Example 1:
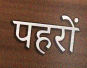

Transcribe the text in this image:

पहरों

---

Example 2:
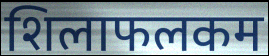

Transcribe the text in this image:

शिलाफलकम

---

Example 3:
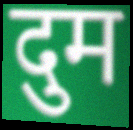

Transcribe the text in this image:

दुम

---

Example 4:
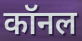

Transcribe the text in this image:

कॉनल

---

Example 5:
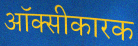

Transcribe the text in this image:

ऑक्सीकारक